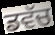
ਡਵੱਚ